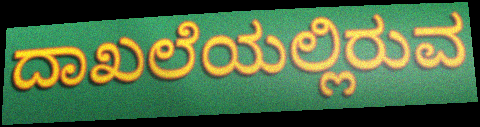
ದಾಖಲೆಯಲ್ಲಿರುವ